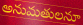
అనుమతులనూ